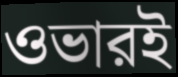
ওভারই